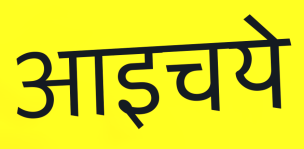
आइचये